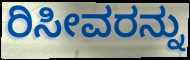
ರಿಸೀವರನ್ನು